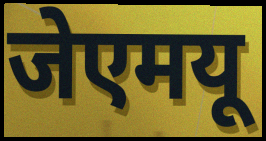
जेएमयू